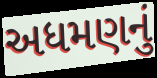
અધમણનું